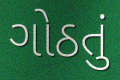
ગોઠતું